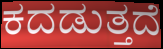
ಕದಡುತ್ತದೆ